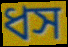
ধস